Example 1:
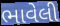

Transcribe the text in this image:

ભાવેલી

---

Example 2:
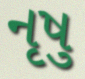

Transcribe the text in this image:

નૃષુ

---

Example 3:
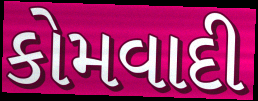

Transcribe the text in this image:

કોમવાદી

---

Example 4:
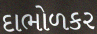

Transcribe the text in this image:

દાભોળકર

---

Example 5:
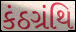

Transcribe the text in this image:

કંઠગ્રંથિ